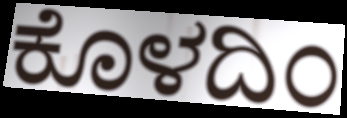
ಕೊಳದಿಂ